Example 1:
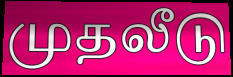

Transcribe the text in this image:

முதலீடு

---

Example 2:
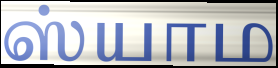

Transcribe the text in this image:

ஸ்யாம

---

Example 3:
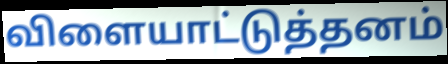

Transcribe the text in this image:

விளையாட்டுத்தனம்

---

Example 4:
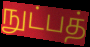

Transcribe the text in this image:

நுட்பத்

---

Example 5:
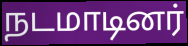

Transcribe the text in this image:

நடமாடினர்